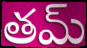
తమ్